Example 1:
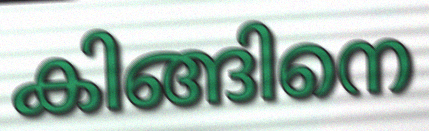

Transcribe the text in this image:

കിങ്ങിനെ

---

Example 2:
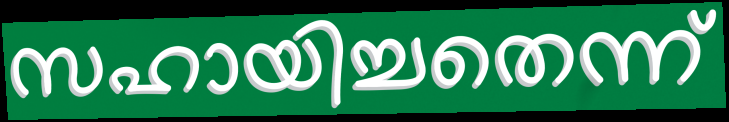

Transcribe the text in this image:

സഹായിച്ചതെന്ന്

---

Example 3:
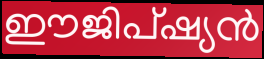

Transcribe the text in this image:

ഈജിപ്ഷ്യൻ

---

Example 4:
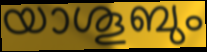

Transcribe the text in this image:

യാശൂബും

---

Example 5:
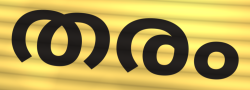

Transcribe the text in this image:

തരം